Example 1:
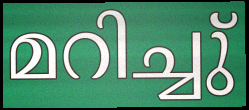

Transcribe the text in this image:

മറിച്ചു്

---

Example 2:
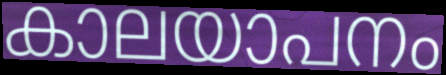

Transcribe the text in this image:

കാലയാപനം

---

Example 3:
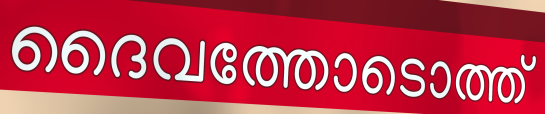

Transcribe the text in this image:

ദൈവത്തോടൊത്ത്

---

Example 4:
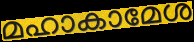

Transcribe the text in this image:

മഹാകാമേശ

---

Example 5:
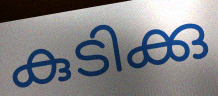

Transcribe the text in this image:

കുടിക്കു